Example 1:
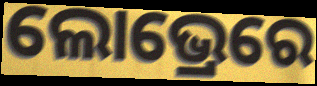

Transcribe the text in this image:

ଲୋଭ୍ରେରେ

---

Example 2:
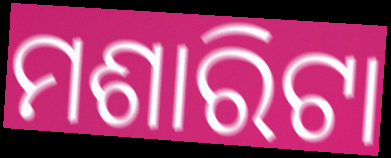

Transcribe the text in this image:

ମଶାରିଟା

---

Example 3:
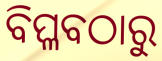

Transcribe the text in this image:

ବିପ୍ଳବଠାରୁ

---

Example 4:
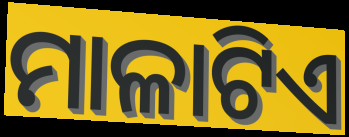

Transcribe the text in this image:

ମାଳାଟିଏ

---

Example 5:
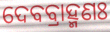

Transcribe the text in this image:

ଦେବବ୍ରାହ୍ମଣଃ